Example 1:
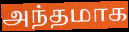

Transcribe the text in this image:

அந்தமாக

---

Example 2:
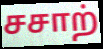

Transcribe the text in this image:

சசாற்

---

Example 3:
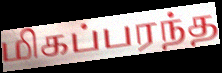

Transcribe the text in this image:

மிகப்பரந்த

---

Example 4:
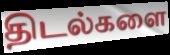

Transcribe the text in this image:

திடல்களை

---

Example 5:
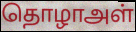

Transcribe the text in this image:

தொழாஅள்